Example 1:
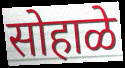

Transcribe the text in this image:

सोहाळे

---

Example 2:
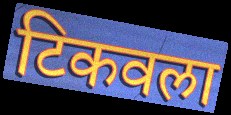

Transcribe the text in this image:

टिकवला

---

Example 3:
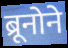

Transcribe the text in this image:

ब्रूनोने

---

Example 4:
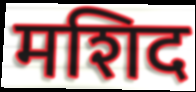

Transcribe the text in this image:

मशिद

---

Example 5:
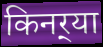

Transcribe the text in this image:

किनर्या